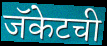
जॅकेटची